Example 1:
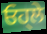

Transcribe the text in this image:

ਓਹ੍ਲੇ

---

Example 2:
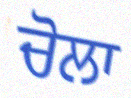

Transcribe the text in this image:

ਚੋਲਾ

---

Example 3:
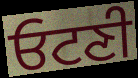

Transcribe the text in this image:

ਓਟਣੀ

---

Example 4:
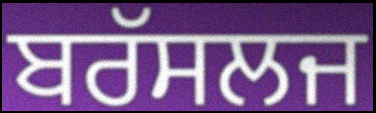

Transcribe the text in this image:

ਬਰੱਸਲਜ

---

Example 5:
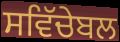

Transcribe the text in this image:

ਸਵਿੱਚੇਬਲ